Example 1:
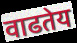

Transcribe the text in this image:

वाढतेय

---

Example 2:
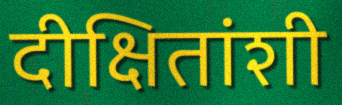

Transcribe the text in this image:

दीक्षितांशी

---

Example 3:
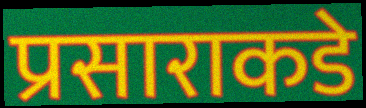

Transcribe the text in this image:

प्रसाराकडे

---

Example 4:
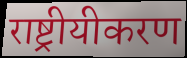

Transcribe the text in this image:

राष्ट्रीयीकरण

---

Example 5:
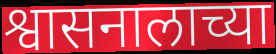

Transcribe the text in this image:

श्वासनालाच्या